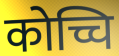
कोच्चि